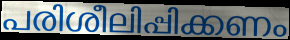
പരിശീലിപ്പിക്കണം